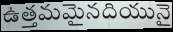
ఉత్తమమైనదియునై